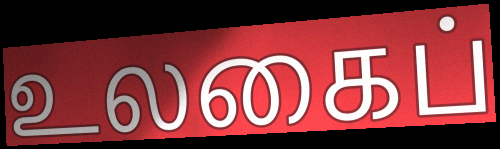
உலகைப்